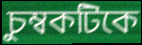
চুম্বকটিকে